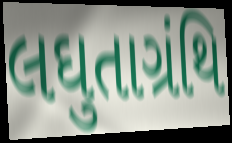
લઘુતાગ્રંથિ